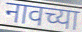
नावच्या